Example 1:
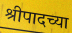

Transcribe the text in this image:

श्रीपादच्या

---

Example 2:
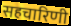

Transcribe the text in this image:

सहचारिणी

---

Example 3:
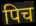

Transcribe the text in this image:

पिच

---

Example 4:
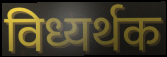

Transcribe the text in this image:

विध्यर्थक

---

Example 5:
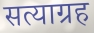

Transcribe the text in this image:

सत्याग्रह